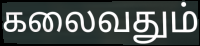
கலைவதும்